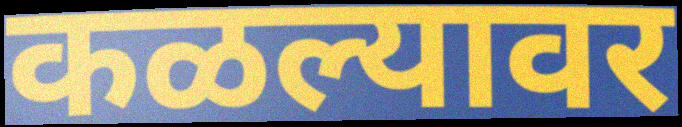
कळल्यावर